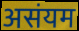
असंयम